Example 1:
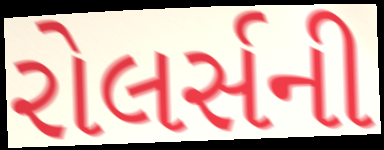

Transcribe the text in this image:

રોલર્સની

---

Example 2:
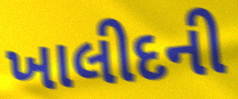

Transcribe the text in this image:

ખાલીદની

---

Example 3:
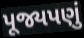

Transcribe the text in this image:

પૂજ્યપણું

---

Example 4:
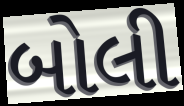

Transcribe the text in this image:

બોલી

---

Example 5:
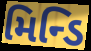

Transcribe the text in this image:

મિન્ડિ